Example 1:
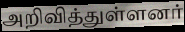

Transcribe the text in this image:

அறிவித்துள்ளனர்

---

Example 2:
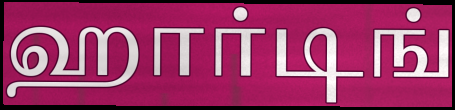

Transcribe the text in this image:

ஹார்டிங்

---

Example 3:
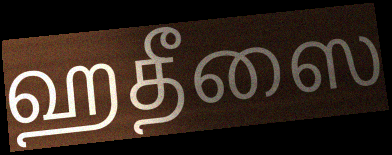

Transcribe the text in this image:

ஹதீஸை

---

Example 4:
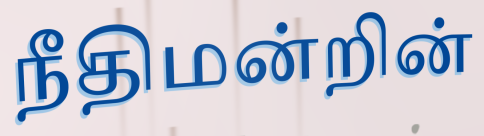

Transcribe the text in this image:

நீதிமன்றின்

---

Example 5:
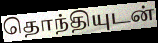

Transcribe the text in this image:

தொந்தியுடன்